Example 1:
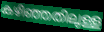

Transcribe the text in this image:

കഴിഞ്ഞതിലുള്ള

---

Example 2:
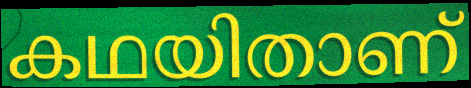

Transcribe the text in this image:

കഥയിതാണ്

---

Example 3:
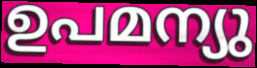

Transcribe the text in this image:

ഉപമന്യു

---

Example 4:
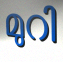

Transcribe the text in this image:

മുറി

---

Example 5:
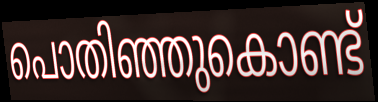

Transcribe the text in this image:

പൊതിഞ്ഞുകൊണ്ട്